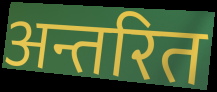
अन्तरित